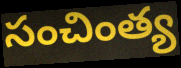
సంచింత్య